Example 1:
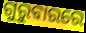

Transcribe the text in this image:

ଗୁରୁବାରରେ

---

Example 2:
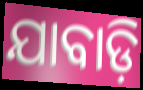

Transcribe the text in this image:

ଯାବାଡ଼ି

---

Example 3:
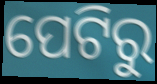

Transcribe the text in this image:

ପେଟିରୁ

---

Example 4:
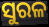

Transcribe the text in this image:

ସୁରଳ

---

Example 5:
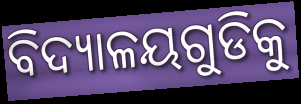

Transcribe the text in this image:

ବିଦ୍ୟାଳୟଗୁଡିକୁ